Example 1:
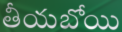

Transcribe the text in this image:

తీయబోయి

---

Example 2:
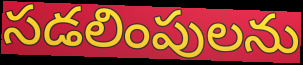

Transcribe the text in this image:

సడలింపులను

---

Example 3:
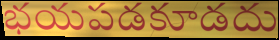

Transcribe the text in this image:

భయపడకూడదు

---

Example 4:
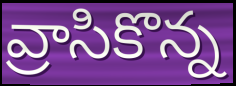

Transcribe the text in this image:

వ్రాసికొన్న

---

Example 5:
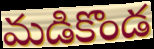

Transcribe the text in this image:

మడికొండ